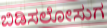
ಬಿಡಿಸಲೋಸುಗ